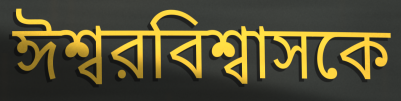
ঈশ্বরবিশ্বাসকে